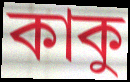
কাকু